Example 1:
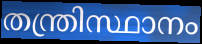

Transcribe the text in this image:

തന്ത്രിസ്ഥാനം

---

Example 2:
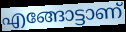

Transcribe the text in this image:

എങ്ങോട്ടാണ്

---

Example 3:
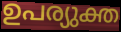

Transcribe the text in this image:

ഉപര്യുക്ത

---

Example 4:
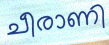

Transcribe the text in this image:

ചീരാണി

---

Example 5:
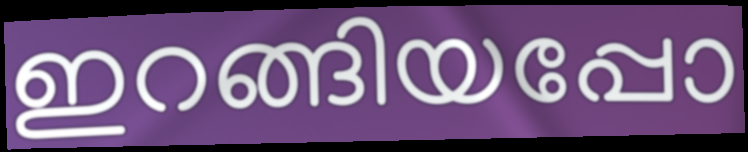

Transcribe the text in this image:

ഇറങ്ങിയപ്പോ